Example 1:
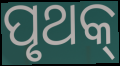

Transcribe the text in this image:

ପୃଥକ୍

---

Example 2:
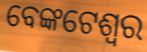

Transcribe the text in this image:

ବେଙ୍କଟେଶ୍ୱର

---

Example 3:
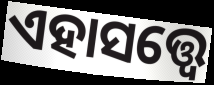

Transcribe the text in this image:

ଏହାସତ୍ତ୍ବେ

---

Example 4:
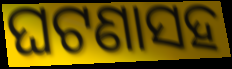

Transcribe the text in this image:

ଘଟଣାସହ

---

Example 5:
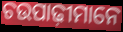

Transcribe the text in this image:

ଚଉପାଢ଼ୀମାନେ